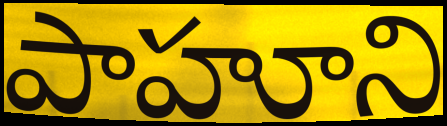
పాహూని